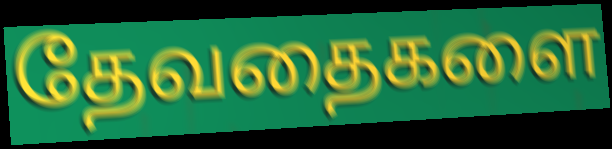
தேவதைகளை